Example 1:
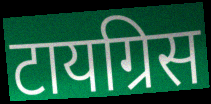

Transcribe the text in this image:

टायग्रिस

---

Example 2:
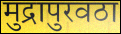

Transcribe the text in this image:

मुद्रापुरवठा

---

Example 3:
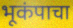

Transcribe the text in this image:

भूकंपाचा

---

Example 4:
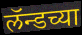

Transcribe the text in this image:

लॅन्डच्या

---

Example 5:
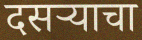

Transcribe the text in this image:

दसऱ्याचा